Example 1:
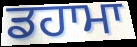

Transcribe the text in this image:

ਡਹਾਮਾ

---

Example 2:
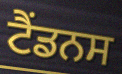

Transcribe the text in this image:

ਟੈਂਡਨਸ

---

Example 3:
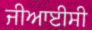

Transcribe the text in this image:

ਜੀਆਈਸੀ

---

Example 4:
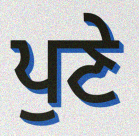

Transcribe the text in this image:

ਪੁਣੇ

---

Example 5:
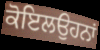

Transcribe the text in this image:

ਕੋਇਲਉਹਨਾਂ